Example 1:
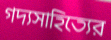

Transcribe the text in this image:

গদ্যসাহিত্যের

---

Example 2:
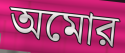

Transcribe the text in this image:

অমোর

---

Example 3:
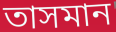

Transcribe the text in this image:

তাসমান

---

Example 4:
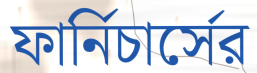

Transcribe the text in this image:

ফার্নিচার্সের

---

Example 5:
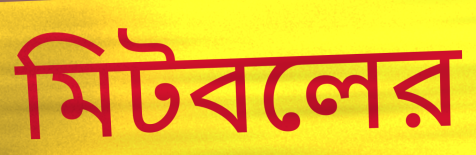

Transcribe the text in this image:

মিটবলের